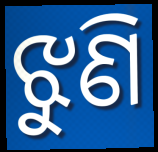
ଝୁଣି